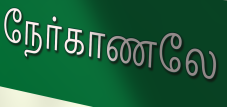
நேர்காணலே